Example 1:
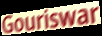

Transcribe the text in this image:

Gouriswar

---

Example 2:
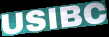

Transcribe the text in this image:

USIBC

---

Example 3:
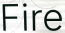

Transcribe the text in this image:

Fire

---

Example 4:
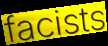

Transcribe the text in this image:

facists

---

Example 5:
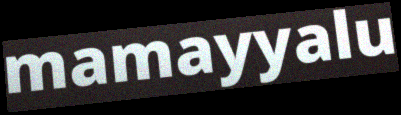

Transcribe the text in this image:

mamayyalu